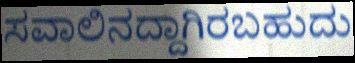
ಸವಾಲಿನದ್ದಾಗಿರಬಹುದು